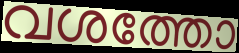
വശത്തോ